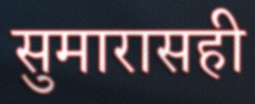
सुमारासही